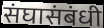
संघासंबंधी